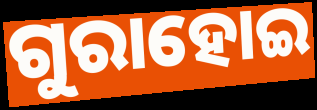
ଗୁରାହୋଇ